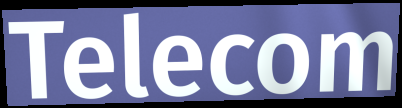
Telecom